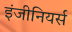
इंजीनियर्स